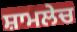
ਸ਼ਾਮਲੇਚ